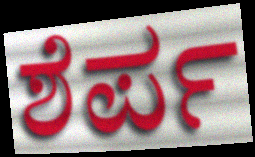
ಶೆರ್ಪ